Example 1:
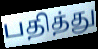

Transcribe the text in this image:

பதித்து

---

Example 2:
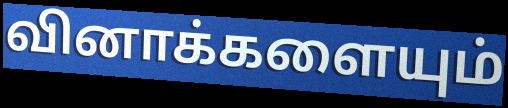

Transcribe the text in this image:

வினாக்களையும்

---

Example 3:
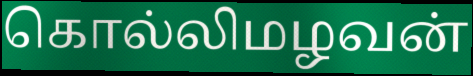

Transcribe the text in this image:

கொல்லிமழவன்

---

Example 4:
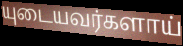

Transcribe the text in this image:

யுடையவர்களாய்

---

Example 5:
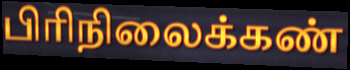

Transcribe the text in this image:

பிரிநிலைக்கண்